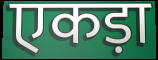
एकड़ा